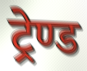
ट्रेण्ड